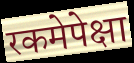
रकमेपेक्षा